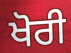
ਖੋਰੀ